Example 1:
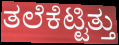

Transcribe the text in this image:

ತಲೆಕೆಟ್ಟಿತ್ತು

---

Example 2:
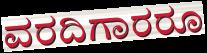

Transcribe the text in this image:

ವರದಿಗಾರರೂ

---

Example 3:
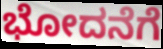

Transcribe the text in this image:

ಭೋದನೆಗೆ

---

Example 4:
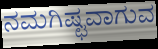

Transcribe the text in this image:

ನಮಗಿಷ್ಟವಾಗುವ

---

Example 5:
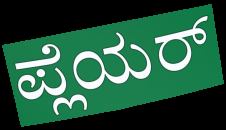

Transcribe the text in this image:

ಪ್ಲೆಯರ್